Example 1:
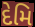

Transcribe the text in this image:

દેમિ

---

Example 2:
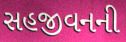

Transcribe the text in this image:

સહજીવનની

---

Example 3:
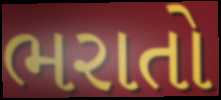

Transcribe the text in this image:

ભરાતો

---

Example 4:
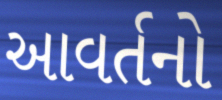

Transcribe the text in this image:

આવર્તનો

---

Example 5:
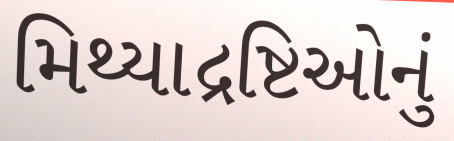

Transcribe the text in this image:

મિથ્યાદ્રષ્ટિઓનું